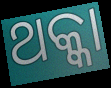
ଥକ୍କା